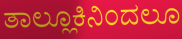
ತಾಲ್ಲೂಕಿನಿಂದಲೂ